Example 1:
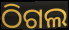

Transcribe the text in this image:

ଠିଗଲ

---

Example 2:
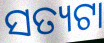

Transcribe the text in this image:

ସତ୍ୟଟା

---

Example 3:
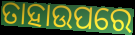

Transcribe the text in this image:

ତାହାଉପରେ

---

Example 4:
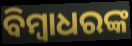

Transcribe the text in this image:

ବିମ୍ବାଧରଙ୍କ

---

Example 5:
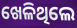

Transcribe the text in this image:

ଖେଳିଥିଲେ